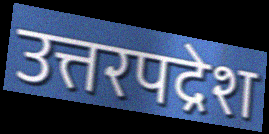
उत्तरपद्रेश